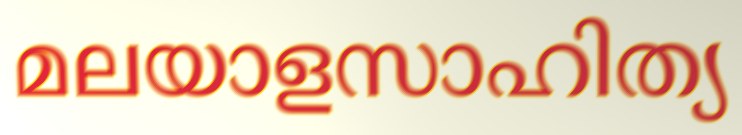
മലയാളസാഹിത്യ